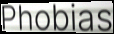
Phobias